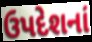
ઉપદેશનાં